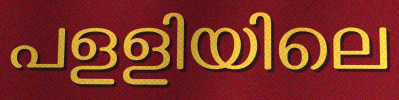
പളളിയിലെ